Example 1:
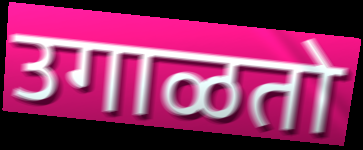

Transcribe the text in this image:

उगाळतो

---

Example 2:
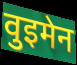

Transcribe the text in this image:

वुइमेन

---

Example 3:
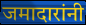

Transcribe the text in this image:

जमादारांनी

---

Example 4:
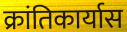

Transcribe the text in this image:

क्रांतिकार्यास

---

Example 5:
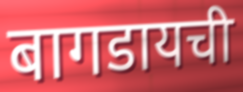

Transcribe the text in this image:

बागडायची